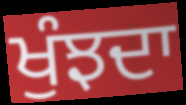
ਖੁੰਝਦਾ